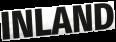
INLAND